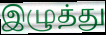
இழுத்து